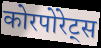
कोरपोरेट्स